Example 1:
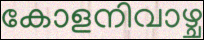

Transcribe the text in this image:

കോളനിവാഴ്ച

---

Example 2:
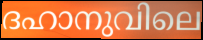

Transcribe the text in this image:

ദഹാനുവിലെ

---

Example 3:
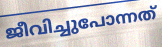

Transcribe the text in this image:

ജീവിച്ചുപോന്നത്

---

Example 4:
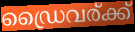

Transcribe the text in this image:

ഡ്രൈവര്ക്ക്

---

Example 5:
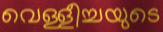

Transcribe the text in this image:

വെള്ളീച്ചയുടെ